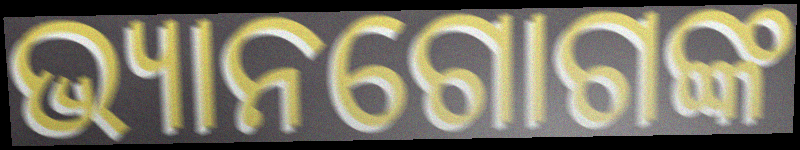
ଭ୍ୟାନଗୋଗଙ୍କ